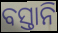
ବସ୍ତାନି